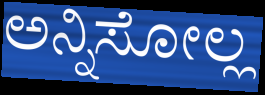
ಅನ್ನಿಸೋಲ್ಲ